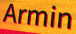
Armin